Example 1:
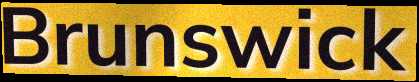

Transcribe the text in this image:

Brunswick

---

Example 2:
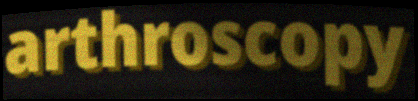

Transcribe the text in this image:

arthroscopy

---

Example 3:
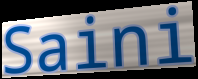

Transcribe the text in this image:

Saini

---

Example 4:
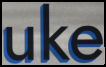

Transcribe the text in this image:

uke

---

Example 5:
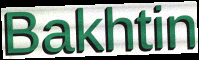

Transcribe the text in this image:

Bakhtin